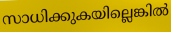
സാധിക്കുകയില്ലെങ്കിൽ